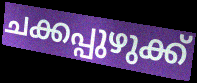
ചക്കപ്പുഴുക്ക്